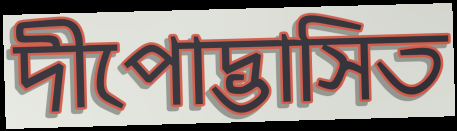
দীপোদ্ভাসিত